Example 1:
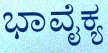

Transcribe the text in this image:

ಭಾವೈಕ್ಯ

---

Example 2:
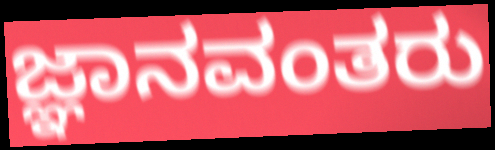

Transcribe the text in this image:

ಜ್ಞಾನವಂತರು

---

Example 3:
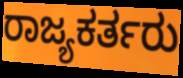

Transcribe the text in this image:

ರಾಜ್ಯಕರ್ತರು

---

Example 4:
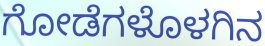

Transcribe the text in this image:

ಗೋಡೆಗಳೊಳಗಿನ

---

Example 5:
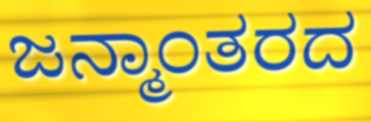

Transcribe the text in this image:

ಜನ್ಮಾಂತರದ